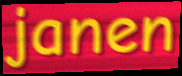
janen